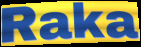
Raka